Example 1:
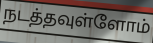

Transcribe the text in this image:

நடத்தவுள்ளோம்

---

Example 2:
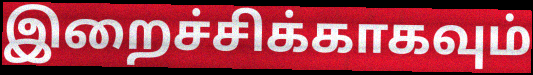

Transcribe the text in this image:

இறைச்சிக்காகவும்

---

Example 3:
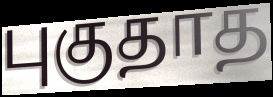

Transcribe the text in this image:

புகுதாத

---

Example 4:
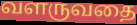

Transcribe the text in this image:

வளருவதை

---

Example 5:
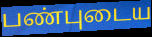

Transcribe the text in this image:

பண்புடைய